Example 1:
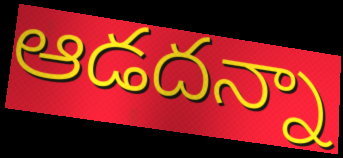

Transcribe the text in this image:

ఆడదన్నా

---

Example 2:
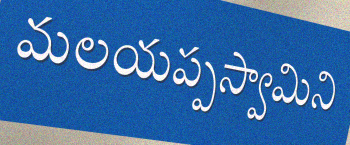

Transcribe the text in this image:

మలయప్పస్వామిని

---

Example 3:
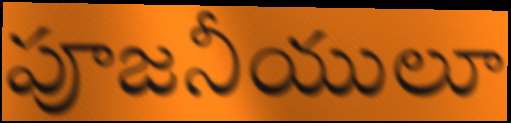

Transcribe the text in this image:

పూజనీయులూ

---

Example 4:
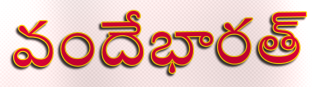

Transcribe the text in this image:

వందేభారత్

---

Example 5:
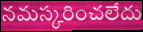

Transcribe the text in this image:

నమస్కరించలేదు